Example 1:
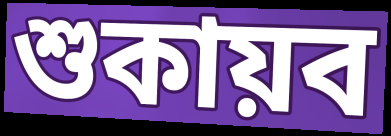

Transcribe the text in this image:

শুকায়ব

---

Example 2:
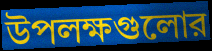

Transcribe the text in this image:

উপলক্ষগুলোর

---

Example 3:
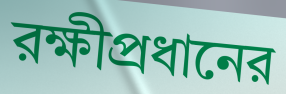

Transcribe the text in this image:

রক্ষীপ্রধানের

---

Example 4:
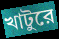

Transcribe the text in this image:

খাটুরে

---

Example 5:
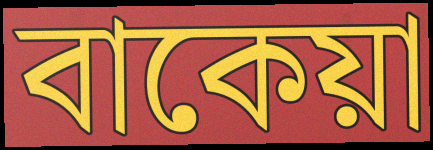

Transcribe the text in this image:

বাকেয়া